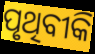
ପୃଥିବୀକି